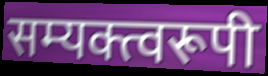
सम्यक्त्वरूपी